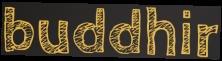
buddhir